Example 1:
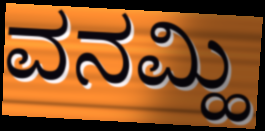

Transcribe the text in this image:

ವನಮ್ಹಿ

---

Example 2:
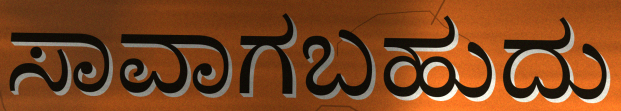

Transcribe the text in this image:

ಸಾವಾಗಬಹುದು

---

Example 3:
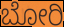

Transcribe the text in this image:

ಬೋರಿ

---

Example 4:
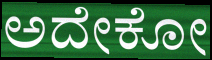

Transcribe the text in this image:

ಅದೇಕೋ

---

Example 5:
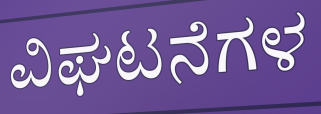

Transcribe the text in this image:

ವಿಘಟನೆಗಳ